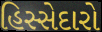
હિસ્સેદારો